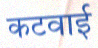
कटवाई